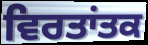
ਵਿਰਤਾਂਤਕ